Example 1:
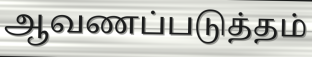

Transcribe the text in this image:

ஆவணப்படுத்தம்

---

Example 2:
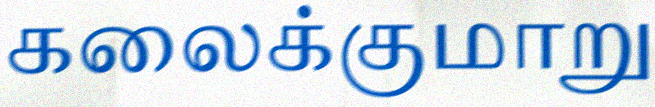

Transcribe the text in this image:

கலைக்குமாறு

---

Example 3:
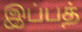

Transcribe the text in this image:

இப்பத்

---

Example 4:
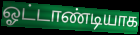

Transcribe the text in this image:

ஓட்டாண்டியாக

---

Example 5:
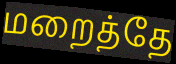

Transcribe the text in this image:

மறைத்தே